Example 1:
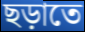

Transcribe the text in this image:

ছড়াতে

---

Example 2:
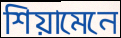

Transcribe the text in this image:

শিয়ামেনে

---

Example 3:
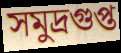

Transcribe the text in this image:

সমুদ্রগুপ্ত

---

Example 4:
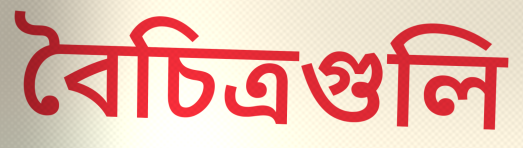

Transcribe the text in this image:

বৈচিত্রগুলি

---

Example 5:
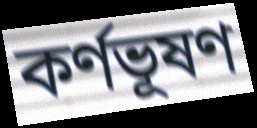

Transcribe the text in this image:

কর্ণভূষণ